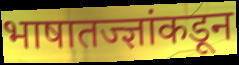
भाषातज्ज्ञांकडून